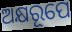
ଅକ୍ଷରୂପେ